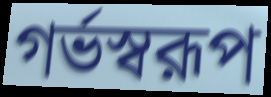
গর্ভস্বরূপ